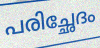
പരിച്ഛേദം